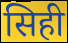
सिही